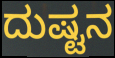
ದುಷ್ಟನ